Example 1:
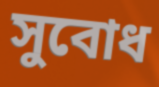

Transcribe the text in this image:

সুবোধ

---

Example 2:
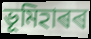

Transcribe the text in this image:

ভূমিহাৰৰ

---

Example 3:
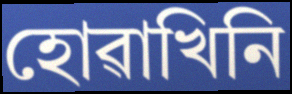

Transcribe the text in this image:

হোৱাখিনি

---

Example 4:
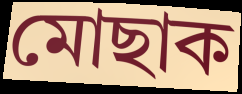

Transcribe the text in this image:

মোছাক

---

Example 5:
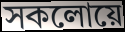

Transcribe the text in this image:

সকলোয়ে